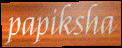
papiksha